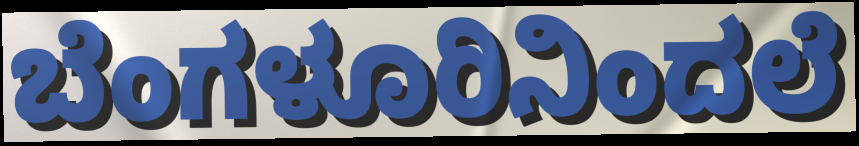
ಬೆಂಗಳೂರಿನಿಂದಲೆ